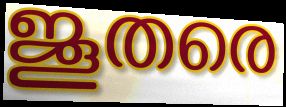
ജൂതരെ